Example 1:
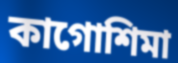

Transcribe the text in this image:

কাগোশিমা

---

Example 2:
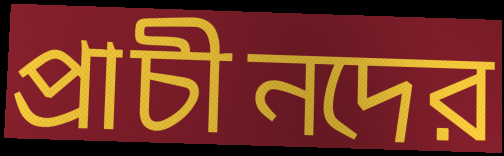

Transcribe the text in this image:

প্রাচীনদের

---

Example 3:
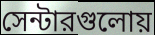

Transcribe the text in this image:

সেন্টারগুলোয়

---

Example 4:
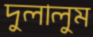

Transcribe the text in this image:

দুলালুম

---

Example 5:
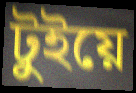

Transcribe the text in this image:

টুইয়ে